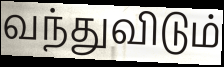
வந்துவிடும்